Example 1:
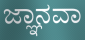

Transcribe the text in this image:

ಜ್ಞಾನವಾ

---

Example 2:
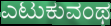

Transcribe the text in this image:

ಎಟುಕುವಂಥ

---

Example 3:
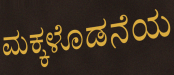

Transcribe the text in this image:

ಮಕ್ಕಳೊಡನೆಯ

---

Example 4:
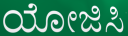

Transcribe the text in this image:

ಯೋಜಿಸಿ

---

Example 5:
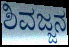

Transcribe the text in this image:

ಶಿವಜ್ಜನ